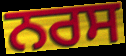
ਨਰਸ